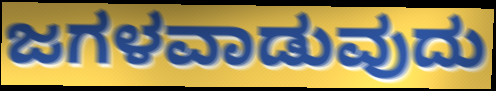
ಜಗಳವಾಡುವುದು